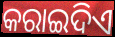
କରାଇଦିଏ